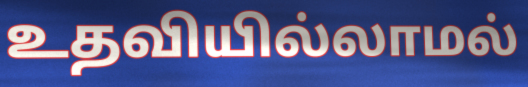
உதவியில்லாமல்